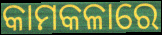
କାମକଳାରେ